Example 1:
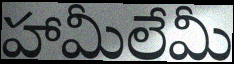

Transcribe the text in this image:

హామీలేమీ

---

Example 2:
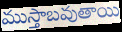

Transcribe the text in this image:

ముస్తాబవుతాయి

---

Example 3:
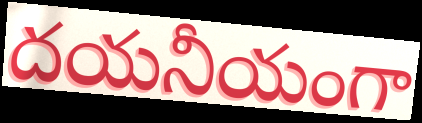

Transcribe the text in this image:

దయనీయంగా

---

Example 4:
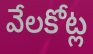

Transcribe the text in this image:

వేలకోట్ల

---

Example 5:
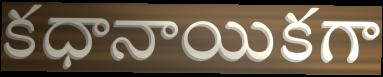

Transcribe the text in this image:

కధానాయికగా